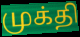
முக்தி